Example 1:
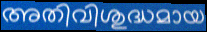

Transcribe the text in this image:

അതിവിശുദ്ധമായ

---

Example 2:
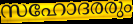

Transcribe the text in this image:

സഹോദരരും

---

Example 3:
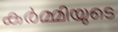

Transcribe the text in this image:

കർമ്മിയുടെ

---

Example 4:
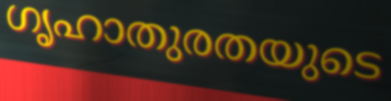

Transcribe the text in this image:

ഗൃഹാതുരതയുടെ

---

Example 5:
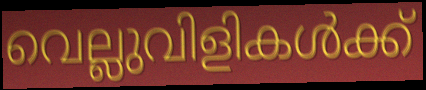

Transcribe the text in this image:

വെല്ലുവിളികൾക്ക്